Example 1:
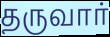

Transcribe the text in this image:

தருவார்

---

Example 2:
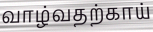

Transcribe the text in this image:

வாழ்வதற்காய்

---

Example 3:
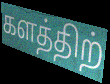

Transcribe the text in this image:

களத்திற்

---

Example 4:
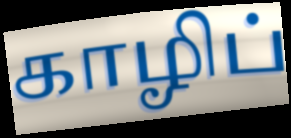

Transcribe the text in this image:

காழிப்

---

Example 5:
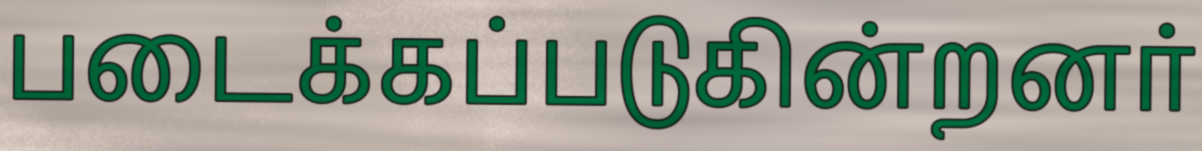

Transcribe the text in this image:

படைக்கப்படுகின்றனர்